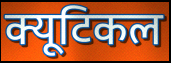
क्यूटिकल